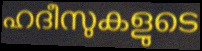
ഹദീസുകളുടെ